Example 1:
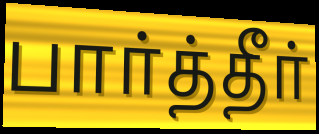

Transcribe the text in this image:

பார்த்தீர்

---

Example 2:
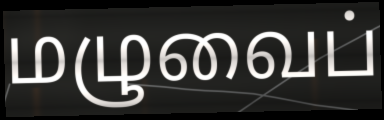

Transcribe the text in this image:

மழுவைப்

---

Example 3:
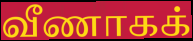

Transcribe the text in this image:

வீணாகக்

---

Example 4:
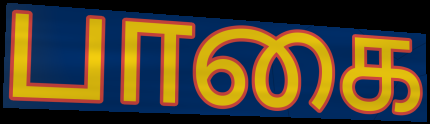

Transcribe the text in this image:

பாகை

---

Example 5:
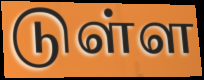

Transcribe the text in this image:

டுள்ள